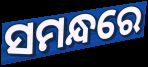
ସମନ୍ଧରେ